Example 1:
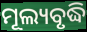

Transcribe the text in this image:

ମୂଲ୍ୟବୃଦ୍ଧି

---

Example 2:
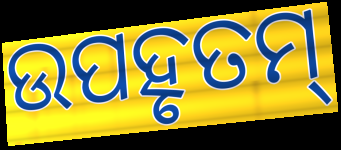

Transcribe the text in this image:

ଉପହୃତମ୍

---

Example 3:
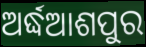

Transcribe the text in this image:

ଅର୍ଦ୍ଧଆଶପୁର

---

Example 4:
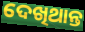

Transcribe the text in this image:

ଦେଖିଥାନ୍ତ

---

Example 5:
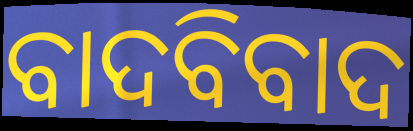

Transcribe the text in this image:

ବାଦବିବାଦ